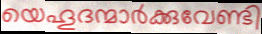
യെഹൂദന്മാർക്കുവേണ്ടി